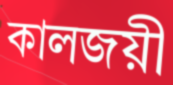
কালজয়ী